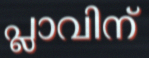
പ്ലാവിന്